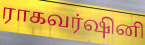
ராகவர்ஷினி